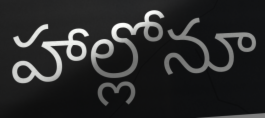
హాల్లోనూ